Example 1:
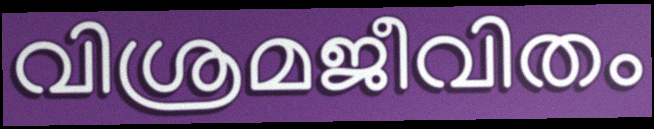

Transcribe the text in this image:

വിശ്രമജീവിതം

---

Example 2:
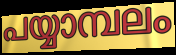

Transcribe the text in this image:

പയ്യാമ്പലം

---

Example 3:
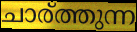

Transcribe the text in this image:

ചാര്ത്തുന്ന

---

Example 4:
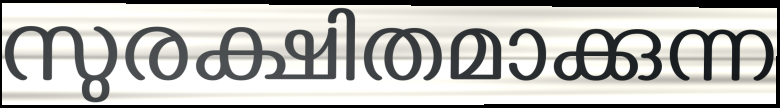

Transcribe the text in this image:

സുരക്ഷിതമാക്കുന്ന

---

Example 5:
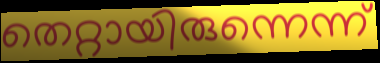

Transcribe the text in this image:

തെറ്റായിരുന്നെന്ന്